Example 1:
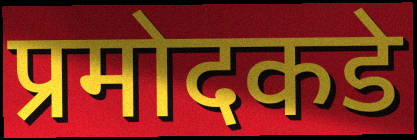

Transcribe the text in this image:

प्रमोदकडे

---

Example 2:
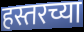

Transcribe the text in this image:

हस्तरच्या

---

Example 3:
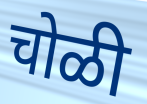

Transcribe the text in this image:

चोळी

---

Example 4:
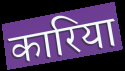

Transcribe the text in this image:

कारिया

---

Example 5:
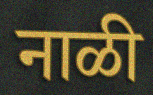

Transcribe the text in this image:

नाळी